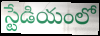
స్టేడియంలో